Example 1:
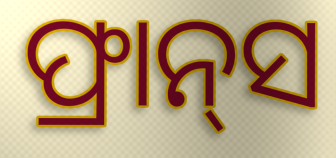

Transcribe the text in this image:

ଫ୍ରାନ୍‌ସ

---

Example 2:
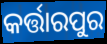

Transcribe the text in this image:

କର୍ତ୍ତାରପୁର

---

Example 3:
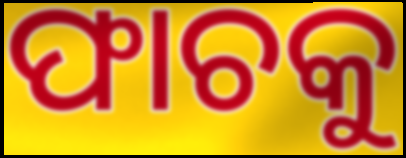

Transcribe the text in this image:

ଫାଚକୁ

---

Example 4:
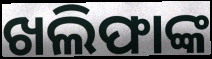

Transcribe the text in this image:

ଖଲିଫାଙ୍କ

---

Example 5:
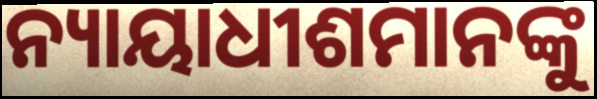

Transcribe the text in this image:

ନ୍ୟାୟାଧୀଶମାନଙ୍କୁ